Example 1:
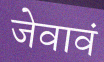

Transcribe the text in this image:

जेवावं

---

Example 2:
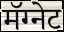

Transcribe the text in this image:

मॅग्नेट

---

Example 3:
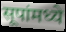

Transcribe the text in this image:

सूपांमध्ये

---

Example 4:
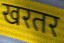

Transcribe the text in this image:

खरतर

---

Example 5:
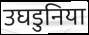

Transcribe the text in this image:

उघडुनिया